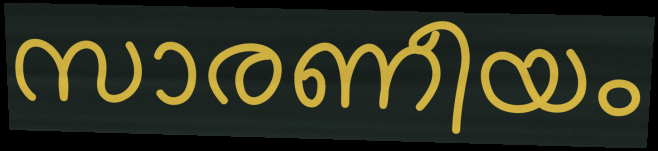
സാരണീയം